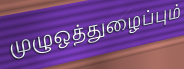
முழுஒத்துழைப்பும்